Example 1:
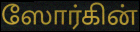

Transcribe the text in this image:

ஸோர்கின்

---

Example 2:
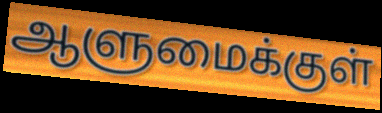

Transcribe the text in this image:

ஆளுமைக்குள்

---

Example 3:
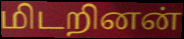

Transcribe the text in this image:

மிடறினன்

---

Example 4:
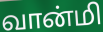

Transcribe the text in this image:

வான்மி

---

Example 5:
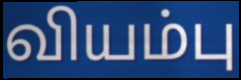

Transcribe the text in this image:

வியம்பு